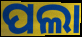
ପଲା